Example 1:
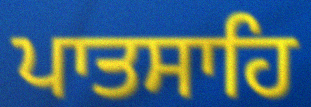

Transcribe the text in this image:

ਪਾਤਸਾਹਿ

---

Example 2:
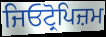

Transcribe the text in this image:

ਜਿਓਟ੍ਰੋਪਿਜ਼ਮ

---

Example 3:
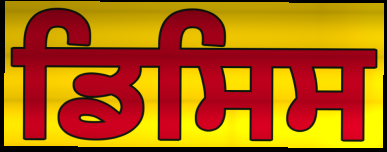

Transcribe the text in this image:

ਡਿਸਿਸ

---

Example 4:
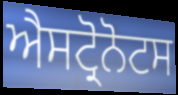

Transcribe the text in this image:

ਐਸਟ੍ਰੋਨੋਟਸ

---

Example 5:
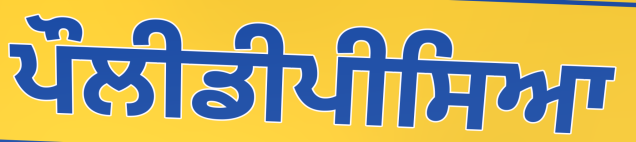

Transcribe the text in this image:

ਪੌਲੀਡੀਪੀਸਿਆ